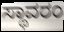
ಸ್ಥಾವರಂ